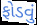
ફોડવું